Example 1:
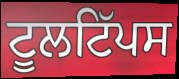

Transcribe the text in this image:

ਟੂਲਟਿੱਪਸ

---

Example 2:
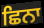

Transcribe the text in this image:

ਛਿਨਾ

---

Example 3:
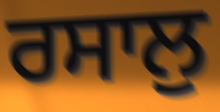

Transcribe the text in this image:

ਰਸਾਲੁ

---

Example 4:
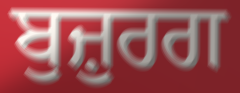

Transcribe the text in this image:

ਬੁਜ਼ੁਰਗ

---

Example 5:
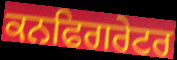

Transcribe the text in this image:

ਕਨਫਿਗਰੇਟਰ